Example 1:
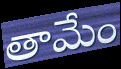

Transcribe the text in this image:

తామేం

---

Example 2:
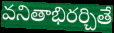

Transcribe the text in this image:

వనితాభిరర్చితే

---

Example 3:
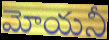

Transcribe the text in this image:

మోయనీ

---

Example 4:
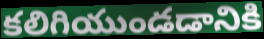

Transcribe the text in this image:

కలిగియుండడానికి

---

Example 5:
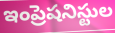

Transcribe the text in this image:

ఇంప్రెషనిస్టుల